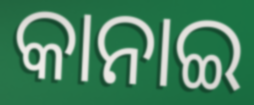
କାନାଇ